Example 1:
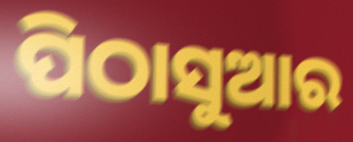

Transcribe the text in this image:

ପିଠାସୁଆର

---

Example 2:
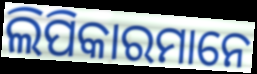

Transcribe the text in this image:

ଲିପିକାରମାନେ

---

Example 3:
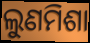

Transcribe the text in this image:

ଲୁଣମିଶା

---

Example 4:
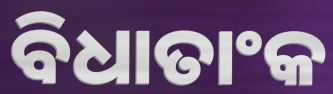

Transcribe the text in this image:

ବିଧାତାଂକ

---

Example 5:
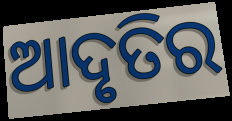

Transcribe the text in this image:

ଆଦୃତିର